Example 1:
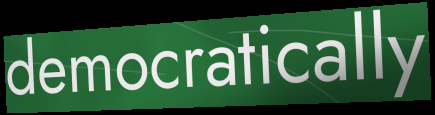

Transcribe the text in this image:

democratically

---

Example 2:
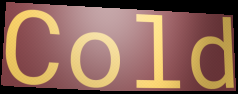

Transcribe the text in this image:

Cold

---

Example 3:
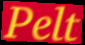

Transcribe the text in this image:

Pelt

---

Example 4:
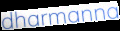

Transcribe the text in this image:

dharmanna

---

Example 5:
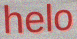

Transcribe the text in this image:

helo